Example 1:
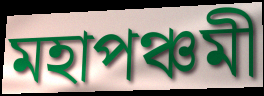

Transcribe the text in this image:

মহাপঞ্চমী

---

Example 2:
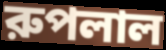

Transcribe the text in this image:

রুপলাল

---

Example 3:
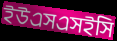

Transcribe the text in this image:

ইউএসএসইসি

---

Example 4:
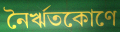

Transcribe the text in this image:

নৈর্ঋতকোণে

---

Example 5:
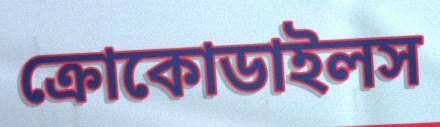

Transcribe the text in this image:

ক্রোকোডাইলস